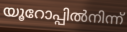
യൂറോപ്പിൽനിന്ന്